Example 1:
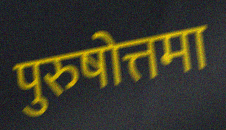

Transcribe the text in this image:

पुरुषोत्तमा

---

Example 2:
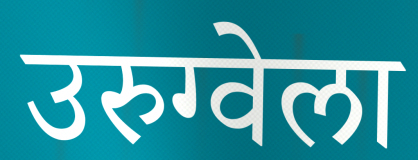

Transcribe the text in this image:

उरुग्वेला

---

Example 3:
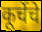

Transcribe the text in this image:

कूर्चेचे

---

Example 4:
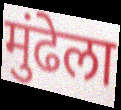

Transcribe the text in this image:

मुंढेला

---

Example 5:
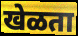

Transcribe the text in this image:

खेळता